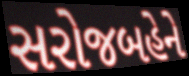
સરોજબહેને